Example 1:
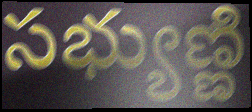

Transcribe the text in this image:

సభ్యుణ్ణి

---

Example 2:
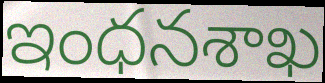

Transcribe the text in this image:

ఇంధనశాఖ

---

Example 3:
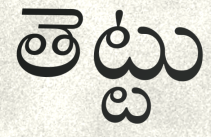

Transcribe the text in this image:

తెట్టు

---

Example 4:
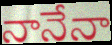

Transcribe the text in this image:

నానేనా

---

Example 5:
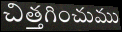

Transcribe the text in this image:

చిత్తగించుము